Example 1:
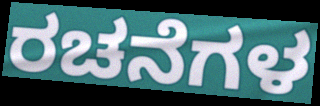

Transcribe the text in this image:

ರಚನೆಗಳ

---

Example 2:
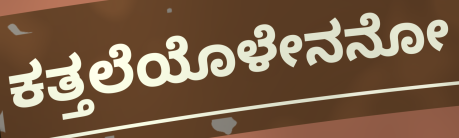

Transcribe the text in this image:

ಕತ್ತಲೆಯೊಳೇನನೋ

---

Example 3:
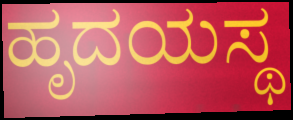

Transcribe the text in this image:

ಹೃದಯಸ್ಥ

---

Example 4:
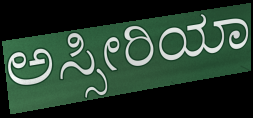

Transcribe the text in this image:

ಅಸ್ಸೀರಿಯಾ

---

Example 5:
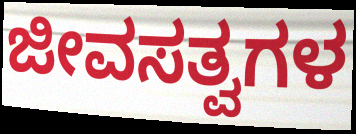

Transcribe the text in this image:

ಜೀವಸತ್ವಗಳ